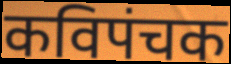
कविपंचक